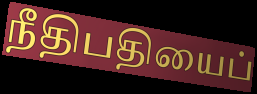
நீதிபதியைப்